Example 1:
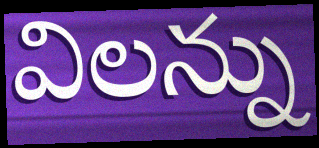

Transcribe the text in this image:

విలన్ను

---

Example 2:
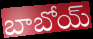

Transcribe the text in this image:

బాబోయ్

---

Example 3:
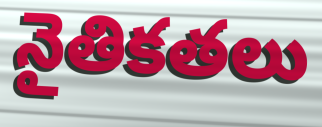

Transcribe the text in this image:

నైతికతలు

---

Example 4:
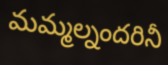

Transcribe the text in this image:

మమ్మల్నందరినీ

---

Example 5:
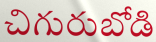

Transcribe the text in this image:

చిగురుబోడి